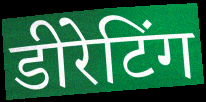
डीरेटिंग